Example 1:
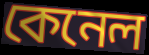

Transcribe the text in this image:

কেনেল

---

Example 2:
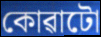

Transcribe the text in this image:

কোৱাটো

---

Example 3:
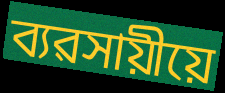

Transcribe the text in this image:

ব্যৱসায়ীয়ে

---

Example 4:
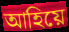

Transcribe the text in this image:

আহিয়ে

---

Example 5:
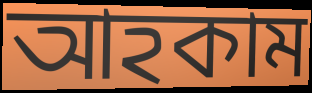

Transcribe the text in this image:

আহকাম